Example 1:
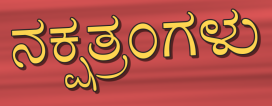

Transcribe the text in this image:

ನಕ್ಷತ್ರಂಗಳು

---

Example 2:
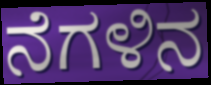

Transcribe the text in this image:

ನೆಗಳಿನ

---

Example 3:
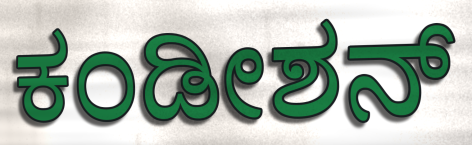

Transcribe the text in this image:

ಕಂಡೀಶನ್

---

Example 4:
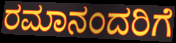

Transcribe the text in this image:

ರಮಾನಂದರಿಗೆ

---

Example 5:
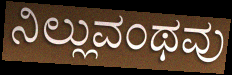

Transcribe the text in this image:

ನಿಲ್ಲುವಂಥವು